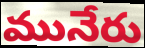
మునేరు